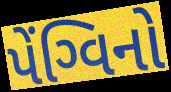
પેંગ્વિનો